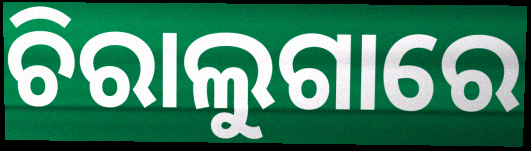
ଚିରାଲୁଗାରେ